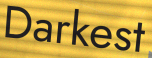
Darkest